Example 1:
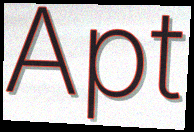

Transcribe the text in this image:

Apt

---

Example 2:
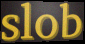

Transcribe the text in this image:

slob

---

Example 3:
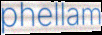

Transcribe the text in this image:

phellam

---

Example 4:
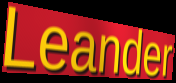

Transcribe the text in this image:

Leander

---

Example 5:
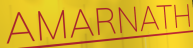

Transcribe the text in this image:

AMARNATH